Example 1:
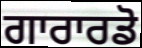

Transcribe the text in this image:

ਗਾਰਾਰਡੋ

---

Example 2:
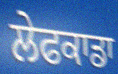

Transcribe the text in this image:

ਲੇਫਕਾਡਾ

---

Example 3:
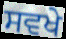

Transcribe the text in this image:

ਸਵਖੇ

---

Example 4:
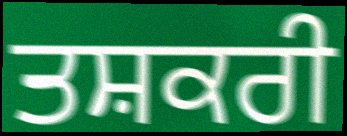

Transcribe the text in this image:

ਤਸ਼ਕਰੀ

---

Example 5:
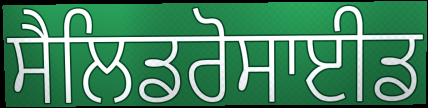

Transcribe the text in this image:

ਸੈਲਿਡਰੋਸਾਈਡ